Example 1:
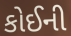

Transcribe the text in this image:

કોઈની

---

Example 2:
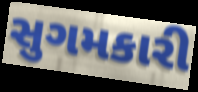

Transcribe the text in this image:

સુગમકારી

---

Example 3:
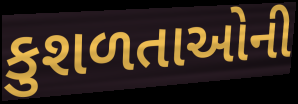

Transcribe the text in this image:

કુશળતાઓની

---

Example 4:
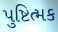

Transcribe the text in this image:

પુષ્ટિત્મક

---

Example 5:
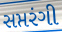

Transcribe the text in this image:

સપ્તરંગી